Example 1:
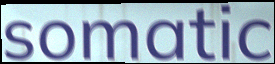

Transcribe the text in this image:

somatic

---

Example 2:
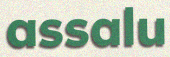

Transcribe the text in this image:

assalu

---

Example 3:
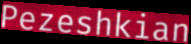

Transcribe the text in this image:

Pezeshkian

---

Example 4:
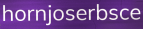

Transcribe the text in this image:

hornjoserbsce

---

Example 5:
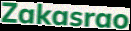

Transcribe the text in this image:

Zakasrao